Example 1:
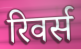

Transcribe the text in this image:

रिवर्स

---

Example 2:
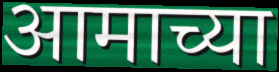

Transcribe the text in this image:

आमाच्या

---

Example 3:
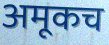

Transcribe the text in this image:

अमूकच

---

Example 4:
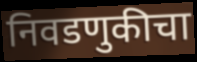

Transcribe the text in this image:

निवडणुकीचा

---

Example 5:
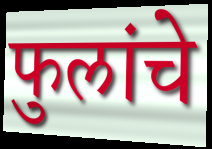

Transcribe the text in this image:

फुलांचे